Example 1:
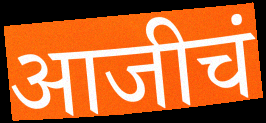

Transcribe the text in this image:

आजीचं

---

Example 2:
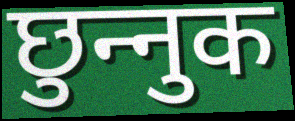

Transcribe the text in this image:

छुन्नुक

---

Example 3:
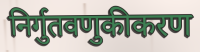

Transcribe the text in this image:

निर्गुतवणुकीकरण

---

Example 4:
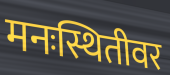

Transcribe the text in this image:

मनःस्थितीवर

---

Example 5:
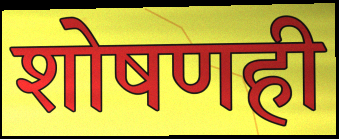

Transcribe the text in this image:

शोषणही